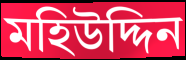
মহিউদ্দিন